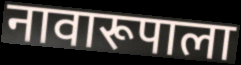
नावारूपाला